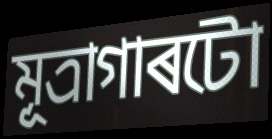
মূত্ৰাগাৰটো